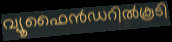
വ്യൂഫൈൻഡറിൽകൂടി